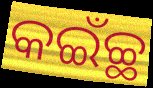
କଇଁଚ୍ଛ